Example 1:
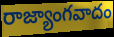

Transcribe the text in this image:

రాజ్యాంగవాదం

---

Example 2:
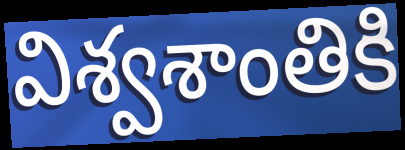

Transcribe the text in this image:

విశ్వశాంతికి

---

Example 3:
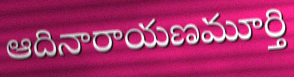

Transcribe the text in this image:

ఆదినారాయణమూర్తి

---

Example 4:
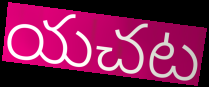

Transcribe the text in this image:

యచట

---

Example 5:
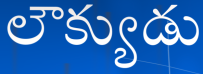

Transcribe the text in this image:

లౌక్యుడు